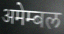
अमेम्बल